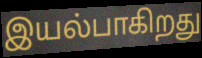
இயல்பாகிறது